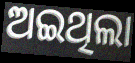
ଅଇଥିଲା